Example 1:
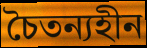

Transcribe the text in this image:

চৈতন্যহীন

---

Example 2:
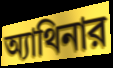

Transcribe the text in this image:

অ্যাথিনার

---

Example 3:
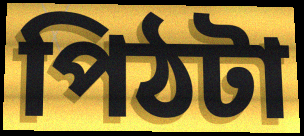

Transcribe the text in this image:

পিঠটা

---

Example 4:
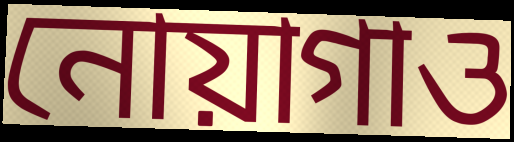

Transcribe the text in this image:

নোয়াগাও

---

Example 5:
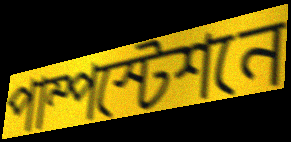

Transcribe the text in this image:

পাম্পস্টেশনে